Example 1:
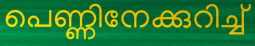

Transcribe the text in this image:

പെണ്ണിനേക്കുറിച്ച്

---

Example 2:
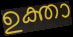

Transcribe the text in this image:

ഉക്താ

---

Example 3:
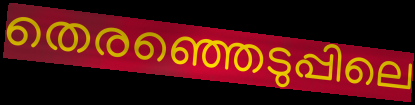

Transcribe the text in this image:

തെരഞ്ഞെടുപ്പിലെ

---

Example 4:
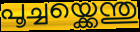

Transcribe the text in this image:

പൂച്ചയ്ക്കെന്തു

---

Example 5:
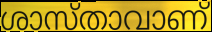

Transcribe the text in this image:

ശാസ്താവാണ്